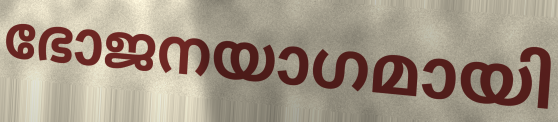
ഭോജനയാഗമായി